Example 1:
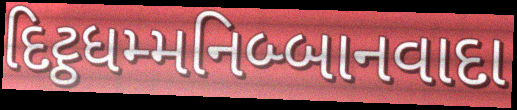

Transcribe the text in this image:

દિટ્ઠધમ્મનિબ્બાનવાદા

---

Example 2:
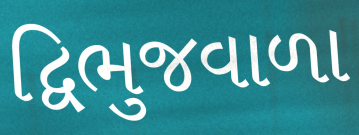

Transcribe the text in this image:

દ્વિભુજવાળા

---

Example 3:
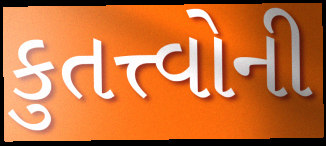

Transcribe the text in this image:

કુતત્ત્વોની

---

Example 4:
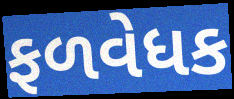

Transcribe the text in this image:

ફળવેધક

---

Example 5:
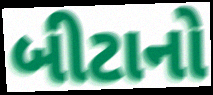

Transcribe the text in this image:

બીટાનો